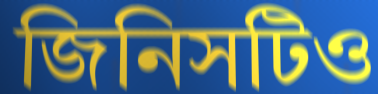
জিনিসটিও